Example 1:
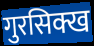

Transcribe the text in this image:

गुरसिक्ख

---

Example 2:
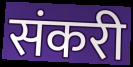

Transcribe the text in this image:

संकरी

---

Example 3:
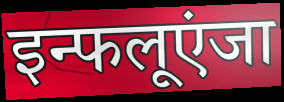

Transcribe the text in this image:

इन्फलूएंजा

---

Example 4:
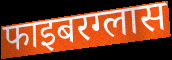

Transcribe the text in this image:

फाइबरग्लास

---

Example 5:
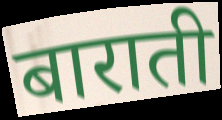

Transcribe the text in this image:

बाराती